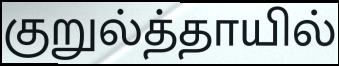
குறுல்த்தாயில்